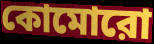
কোমোরো